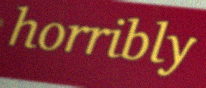
horribly